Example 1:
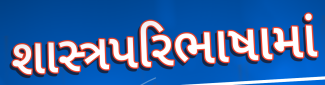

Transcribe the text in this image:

શાસ્ત્રપરિભાષામાં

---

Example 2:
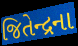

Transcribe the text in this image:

જિતેન્દ્રના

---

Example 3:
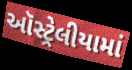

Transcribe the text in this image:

ઑસ્ટ્રેલીયામાં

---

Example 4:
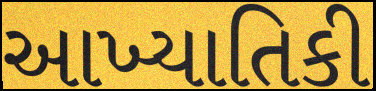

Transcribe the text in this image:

આખ્યાતિકી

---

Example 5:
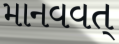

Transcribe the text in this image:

માનવવત્